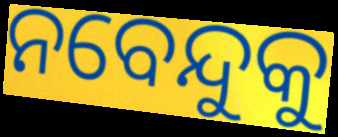
ନବେନ୍ଦୁକୁ